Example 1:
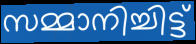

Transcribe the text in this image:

സമ്മാനിച്ചിട്ട്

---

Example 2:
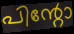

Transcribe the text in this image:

പിന്റോ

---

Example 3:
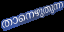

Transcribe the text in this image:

താനെഴുതുന്ന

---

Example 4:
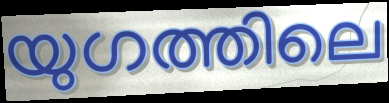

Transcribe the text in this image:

യുഗത്തിലെ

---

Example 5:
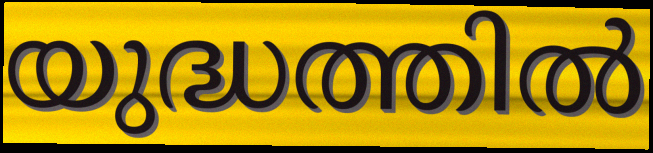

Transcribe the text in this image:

യുദ്ധത്തിൽ